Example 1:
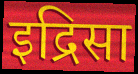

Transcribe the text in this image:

इद्रिसा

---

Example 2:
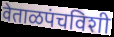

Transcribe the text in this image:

वेताळपंचविशी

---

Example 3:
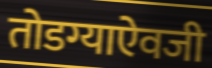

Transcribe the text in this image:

तोडग्याऐवजी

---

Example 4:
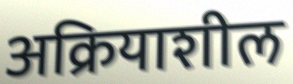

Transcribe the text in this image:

अक्रियाशील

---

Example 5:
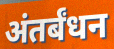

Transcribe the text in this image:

अंतर्बंधन